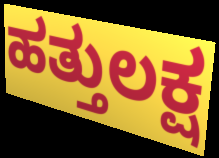
ಹತ್ತುಲಕ್ಷ